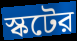
স্কটের